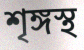
শৃঙ্গস্থ